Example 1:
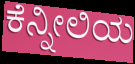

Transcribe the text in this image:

ಕೆನ್ನೀಲಿಯ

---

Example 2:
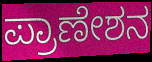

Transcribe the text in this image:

ಪ್ರಾಣೇಶನ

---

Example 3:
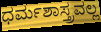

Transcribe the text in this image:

ಧರ್ಮಶಾಸ್ತ್ರವಲ್ಲ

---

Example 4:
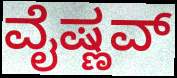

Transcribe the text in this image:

ವೈಷ್ಣವ್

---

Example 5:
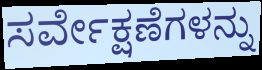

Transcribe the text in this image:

ಸರ್ವೇಕ್ಷಣೆಗಳನ್ನು